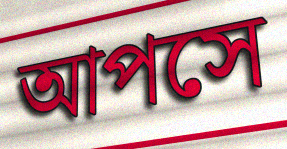
আপসে